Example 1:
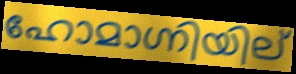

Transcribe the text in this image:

ഹോമാഗ്നിയില്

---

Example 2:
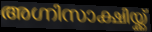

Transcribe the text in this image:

അഗ്നിസാക്ഷിയ്ക്ക്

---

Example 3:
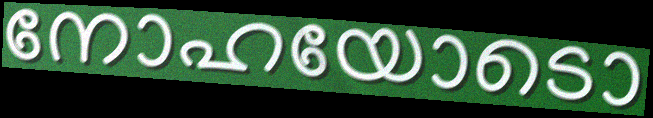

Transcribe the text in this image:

നോഹയോടൊ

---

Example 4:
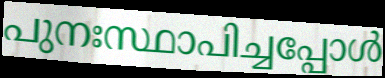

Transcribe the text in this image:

പുനഃസ്ഥാപിച്ചപ്പോൾ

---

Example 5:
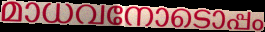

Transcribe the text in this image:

മാധവനോടൊപ്പം